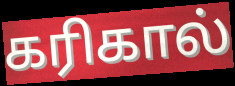
கரிகால்